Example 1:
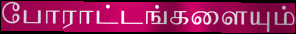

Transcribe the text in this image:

போராட்டங்களையும்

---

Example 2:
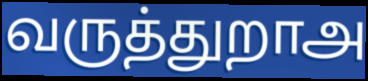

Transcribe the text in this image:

வருத்துறாஅ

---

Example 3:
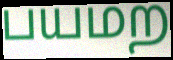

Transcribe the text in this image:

பயமற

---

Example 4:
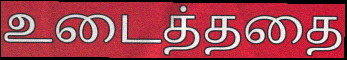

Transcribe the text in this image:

உடைத்ததை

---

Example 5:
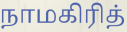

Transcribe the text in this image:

நாமகிரித்